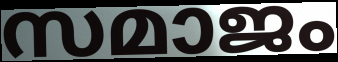
സമാജം